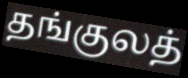
தங்குலத்